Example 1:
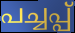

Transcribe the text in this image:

പച്ചപ്പ്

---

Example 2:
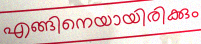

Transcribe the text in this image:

എങ്ങിനെയായിരിക്കും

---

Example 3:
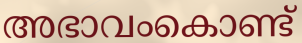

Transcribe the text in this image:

അഭാവംകൊണ്ട്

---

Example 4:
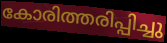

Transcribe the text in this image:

കോരിത്തരിപ്പിച്ചു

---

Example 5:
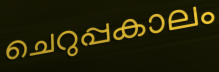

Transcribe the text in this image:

ചെറുപ്പകാലം